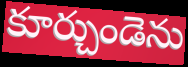
కూర్చుండెను